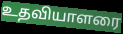
உதவியாளரை